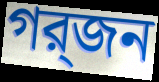
গর্‍জন